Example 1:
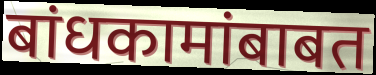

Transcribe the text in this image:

बांधकामांबाबत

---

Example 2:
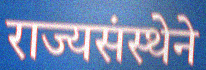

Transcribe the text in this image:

राज्यसंस्थेने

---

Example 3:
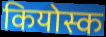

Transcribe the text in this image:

कियोस्क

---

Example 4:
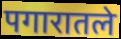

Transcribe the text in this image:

पगारातले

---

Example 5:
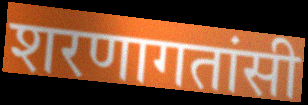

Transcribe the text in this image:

शरणागतांसी